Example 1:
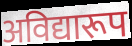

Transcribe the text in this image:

अविद्यारूप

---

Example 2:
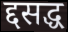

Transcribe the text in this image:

द्दसद्ध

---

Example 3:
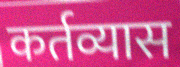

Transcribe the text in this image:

कर्तव्यास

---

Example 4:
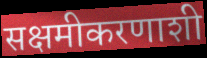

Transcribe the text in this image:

सक्षमीकरणाशी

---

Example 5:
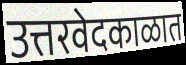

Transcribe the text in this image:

उत्तरवेदकाळात